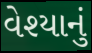
વેશ્યાનું